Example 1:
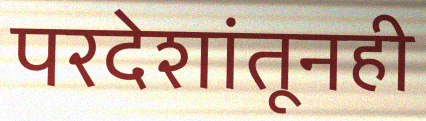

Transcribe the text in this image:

परदेशांतूनही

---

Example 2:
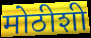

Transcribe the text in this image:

मोठीशी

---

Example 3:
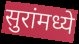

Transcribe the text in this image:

सुरांमध्ये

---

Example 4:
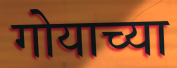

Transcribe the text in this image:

गोयाच्या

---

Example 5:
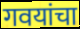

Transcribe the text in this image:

गवयांचा